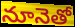
నూనెతో